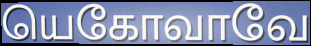
யெகோவாவே